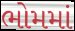
ભોમમાં